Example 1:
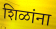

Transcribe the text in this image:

शिळांना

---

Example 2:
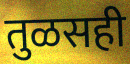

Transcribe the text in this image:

तुळसही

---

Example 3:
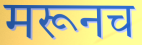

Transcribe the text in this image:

मरूनच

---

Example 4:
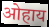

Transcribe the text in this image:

ओहाय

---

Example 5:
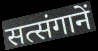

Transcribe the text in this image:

सत्संगानें